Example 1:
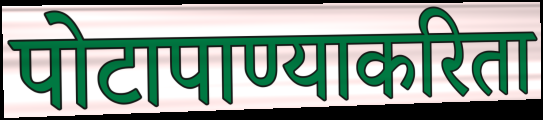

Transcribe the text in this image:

पोटापाण्याकरिता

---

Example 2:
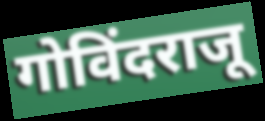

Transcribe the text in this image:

गोविंदराजू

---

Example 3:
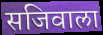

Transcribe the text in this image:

सजिवाला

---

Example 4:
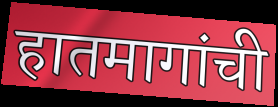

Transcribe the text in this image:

हातमागांची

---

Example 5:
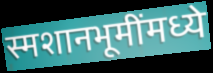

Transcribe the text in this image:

स्मशानभूमींमध्ये